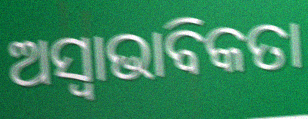
ଅସ୍ୱାଭାବିକତା